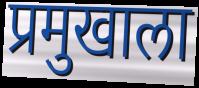
प्रमुखाला